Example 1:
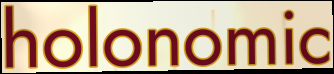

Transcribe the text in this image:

holonomic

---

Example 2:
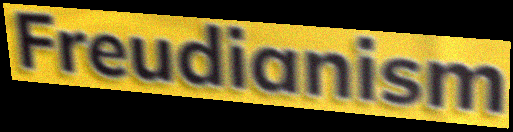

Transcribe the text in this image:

Freudianism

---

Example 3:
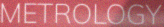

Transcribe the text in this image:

METROLOGY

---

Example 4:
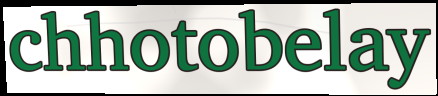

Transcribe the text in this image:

chhotobelay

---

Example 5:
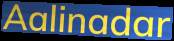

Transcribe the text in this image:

Aalinadar